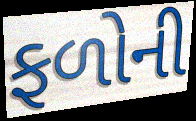
ફળોની